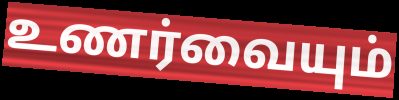
உணர்வையும்